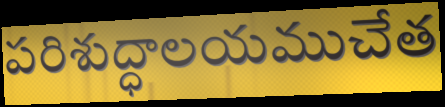
పరిశుద్ధాలయముచేత